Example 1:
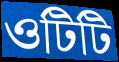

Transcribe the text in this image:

ওটিটি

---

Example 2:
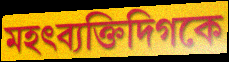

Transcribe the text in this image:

মহৎব্যক্তিদিগকে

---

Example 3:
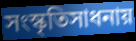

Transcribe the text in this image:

সংস্কৃতিসাধনায়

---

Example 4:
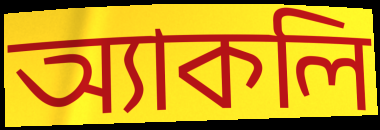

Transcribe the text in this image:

অ্যাকলি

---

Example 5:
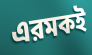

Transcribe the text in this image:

এরমকই